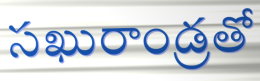
సఖురాండ్రతో